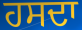
ਹਸਦਾ